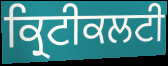
ਕ੍ਰਿਟੀਕਲਟੀ